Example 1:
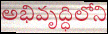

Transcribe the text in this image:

అభివృద్ధిలోని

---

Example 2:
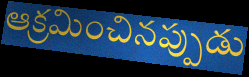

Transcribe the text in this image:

ఆక్రమించినప్పుడు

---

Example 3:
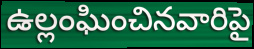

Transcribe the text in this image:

ఉల్లంఘించినవారిపై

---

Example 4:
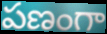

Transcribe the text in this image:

పణంగా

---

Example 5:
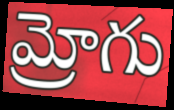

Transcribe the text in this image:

మ్రోగు